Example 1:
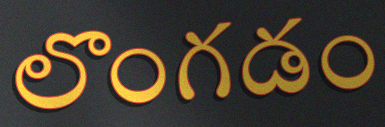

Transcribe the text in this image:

లొంగడం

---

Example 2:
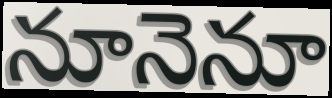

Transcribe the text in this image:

నూనెనూ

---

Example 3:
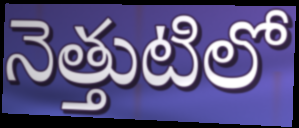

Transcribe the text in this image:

నెత్తుటిలో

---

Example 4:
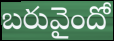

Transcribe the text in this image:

బరువైందో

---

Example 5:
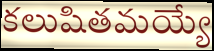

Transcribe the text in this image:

కలుషితమయ్యే